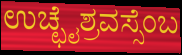
ಉಚ್ಛೈಶ್ರವಸ್ಸೆಂಬ